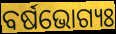
ବର୍ଷଭୋଗ୍ୟଃ